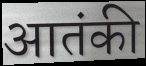
आतंकी